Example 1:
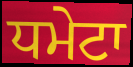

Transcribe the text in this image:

ਧਮੇਟਾ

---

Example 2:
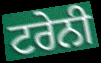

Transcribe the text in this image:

ਟਰੇਨੀ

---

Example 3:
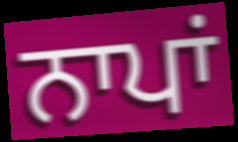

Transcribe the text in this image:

ਨਾਪਾਂ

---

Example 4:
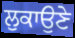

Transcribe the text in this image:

ਲੁਕਾਉਣੇ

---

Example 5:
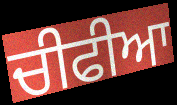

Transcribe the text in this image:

ਚੀਫੀਆ